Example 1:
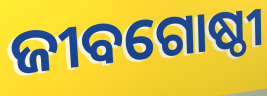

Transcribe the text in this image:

ଜୀବଗୋଷ୍ଠୀ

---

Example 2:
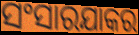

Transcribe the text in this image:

ସଂସାରଯାକର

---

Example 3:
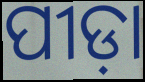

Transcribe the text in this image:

ପୀଡ଼ା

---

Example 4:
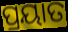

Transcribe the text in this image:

ପ୍ରୟାତ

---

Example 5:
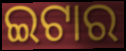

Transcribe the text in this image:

ଇଟାର